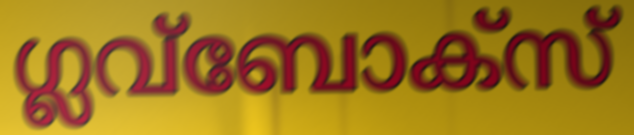
ഗ്ലവ്ബോക്സ്